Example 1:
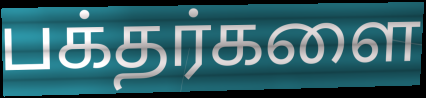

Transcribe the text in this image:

பக்தர்களை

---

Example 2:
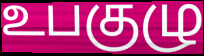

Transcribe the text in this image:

உபகுழு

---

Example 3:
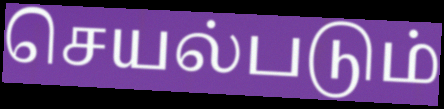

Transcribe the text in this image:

செயல்படும்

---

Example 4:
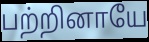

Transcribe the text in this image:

பற்றினாயே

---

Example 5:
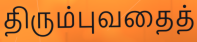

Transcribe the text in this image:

திரும்புவதைத்